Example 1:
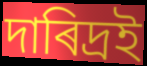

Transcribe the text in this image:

দাৰিদ্ৰই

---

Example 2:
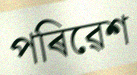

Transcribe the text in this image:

পৰিৱেশ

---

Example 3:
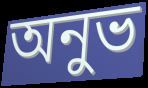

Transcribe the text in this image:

অনুভ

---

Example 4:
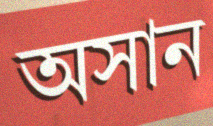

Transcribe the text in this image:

অসান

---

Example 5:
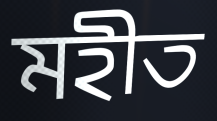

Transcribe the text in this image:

মহীত